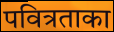
पवित्रताका